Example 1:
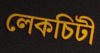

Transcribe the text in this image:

লেকচিটী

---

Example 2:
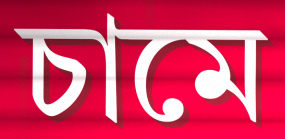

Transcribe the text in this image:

চামে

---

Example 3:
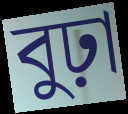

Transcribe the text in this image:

বুঢ়া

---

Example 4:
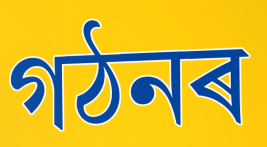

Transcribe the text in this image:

গঠনৰ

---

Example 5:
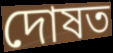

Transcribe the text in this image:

দোষত